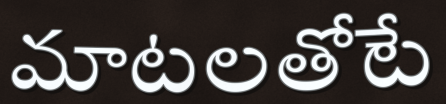
మాటలతోటే